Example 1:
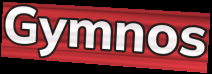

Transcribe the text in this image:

Gymnos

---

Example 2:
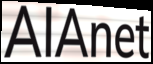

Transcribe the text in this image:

AIAnet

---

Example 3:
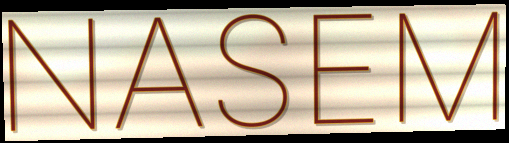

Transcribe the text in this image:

NASEM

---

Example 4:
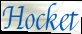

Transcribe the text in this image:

Hocket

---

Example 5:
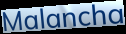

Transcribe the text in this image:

Malancha